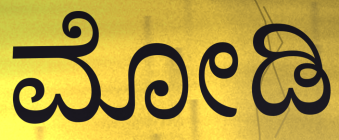
ಮೋಡಿ